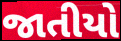
જાતીયો